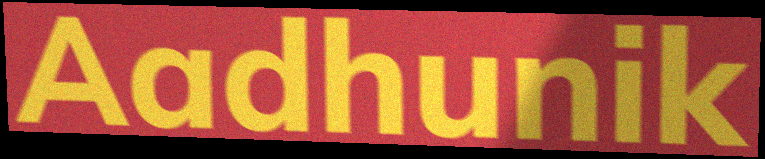
Aadhunik